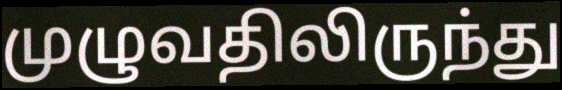
முழுவதிலிருந்து